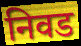
निवड